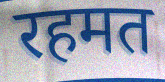
रहमत